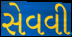
સેવવી